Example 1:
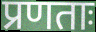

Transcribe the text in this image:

प्रणताः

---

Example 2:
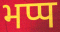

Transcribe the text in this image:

भप्प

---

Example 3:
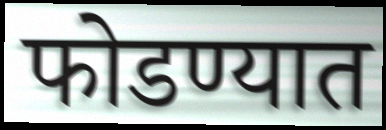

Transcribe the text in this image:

फोडण्यात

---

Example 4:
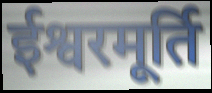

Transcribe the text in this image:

ईश्वरमूर्ति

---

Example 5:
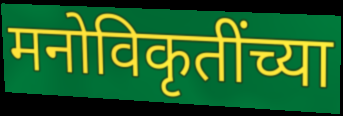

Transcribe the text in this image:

मनोविकृतींच्या